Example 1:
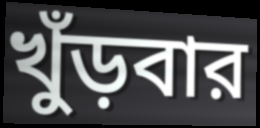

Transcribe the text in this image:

খুঁড়বার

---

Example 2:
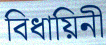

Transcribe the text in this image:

বিধায়িনী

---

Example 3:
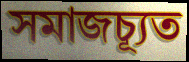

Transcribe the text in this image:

সমাজচ্যূত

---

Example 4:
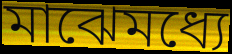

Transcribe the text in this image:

মাঝেমধ্যে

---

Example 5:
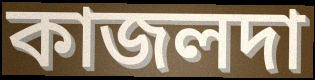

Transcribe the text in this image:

কাজলদা